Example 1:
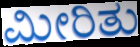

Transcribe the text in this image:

ಮೀರಿತು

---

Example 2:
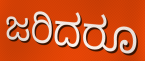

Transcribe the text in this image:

ಜರಿದರೂ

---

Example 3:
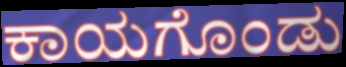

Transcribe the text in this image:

ಕಾಯಗೊಂಡು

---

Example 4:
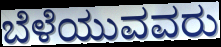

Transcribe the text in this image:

ಬೆಳೆಯುವವರು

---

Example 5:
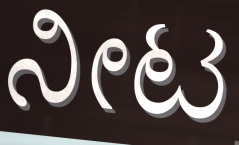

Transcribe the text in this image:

ನೀಟ